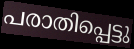
പരാതിപ്പെട്ടു